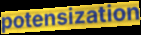
potensization